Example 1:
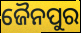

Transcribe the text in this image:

ଜୈନପୁର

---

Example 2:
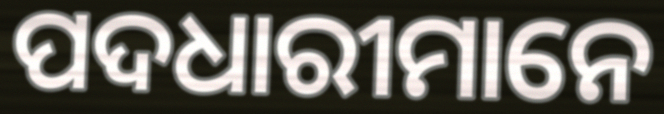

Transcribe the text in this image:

ପଦଧାରୀମାନେ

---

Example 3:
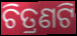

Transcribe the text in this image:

ଚିତ୍ରଣଟି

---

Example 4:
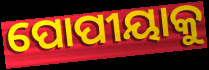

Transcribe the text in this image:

ପୋପୀୟାକୁ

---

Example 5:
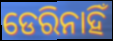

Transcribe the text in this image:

ଡେରିନାହିଁ